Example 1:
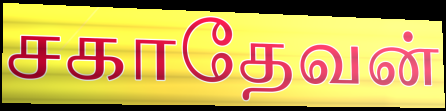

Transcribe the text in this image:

சகாதேவன்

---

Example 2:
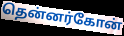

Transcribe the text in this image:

தென்னர்கோன்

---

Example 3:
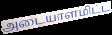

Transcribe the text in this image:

அடையாளமிட்ட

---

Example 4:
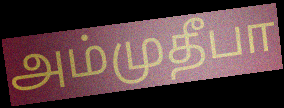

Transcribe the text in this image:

அம்முதீபா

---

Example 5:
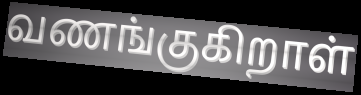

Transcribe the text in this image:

வணங்குகிறாள்